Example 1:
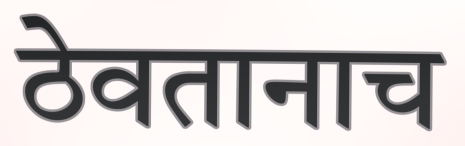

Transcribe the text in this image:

ठेवतानाच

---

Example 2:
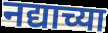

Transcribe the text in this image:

नद्याच्या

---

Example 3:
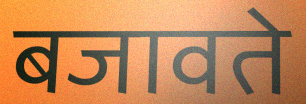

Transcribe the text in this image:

बजावते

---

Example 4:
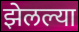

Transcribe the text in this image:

झेलल्या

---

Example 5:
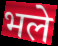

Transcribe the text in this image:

भले